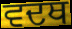
ਵਦਥ